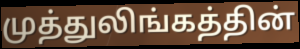
முத்துலிங்கத்தின்